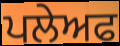
ਪਲੇਅਫ